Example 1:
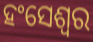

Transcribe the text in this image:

ହଂସେଶ୍ୱର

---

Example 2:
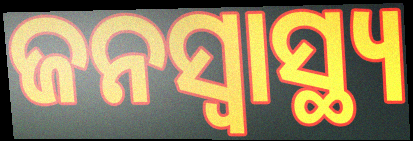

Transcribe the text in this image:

ଜନସ୍ୱାସ୍ଥ୍ୟ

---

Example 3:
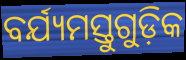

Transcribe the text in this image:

ବର୍ଯ୍ୟମସ୍ତୁଗୁଡ଼ିକ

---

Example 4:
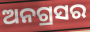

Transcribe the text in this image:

ଅନଗ୍ରସର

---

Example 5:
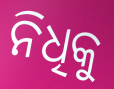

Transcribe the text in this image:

ନିଧିକୁ